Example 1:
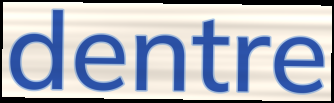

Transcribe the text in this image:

dentre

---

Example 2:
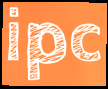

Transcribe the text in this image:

ipc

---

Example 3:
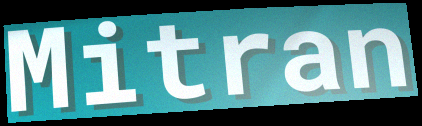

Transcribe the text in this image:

Mitran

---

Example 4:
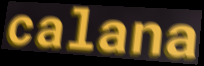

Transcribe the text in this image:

calana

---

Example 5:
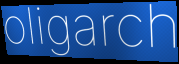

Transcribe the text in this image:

oligarch